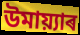
উমায়্যাৰ